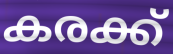
കരക്ക്